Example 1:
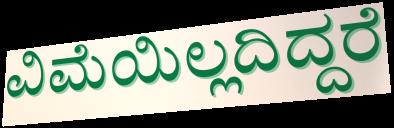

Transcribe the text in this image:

ವಿಮೆಯಿಲ್ಲದಿದ್ದರೆ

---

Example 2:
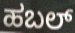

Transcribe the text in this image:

ಹಬಲ್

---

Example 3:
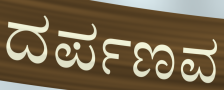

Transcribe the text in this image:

ದರ್ಪಣವ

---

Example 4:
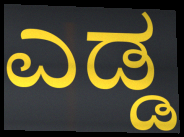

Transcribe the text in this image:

ಎಡ್ಡ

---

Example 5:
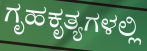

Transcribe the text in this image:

ಗೃಹಕೃತ್ಯಗಳಲ್ಲಿ